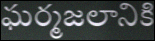
ఘర్మజలానికి